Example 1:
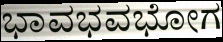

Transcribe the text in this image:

ಭಾವಭವಭೋಗ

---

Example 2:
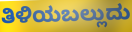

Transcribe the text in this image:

ತಿಳಿಯಬಲ್ಲುದು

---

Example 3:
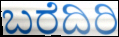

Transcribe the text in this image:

ಬರೆದಿರಿ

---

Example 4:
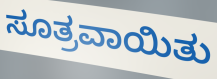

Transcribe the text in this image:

ಸೂತ್ರವಾಯಿತು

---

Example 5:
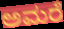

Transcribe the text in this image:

ಅಮರೆ